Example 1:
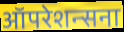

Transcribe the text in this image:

ऑपरेशन्सना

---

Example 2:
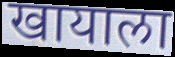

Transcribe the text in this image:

खायाला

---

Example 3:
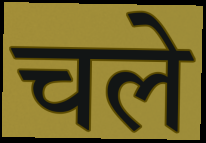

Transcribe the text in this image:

चले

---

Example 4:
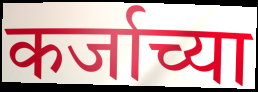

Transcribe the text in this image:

कर्जाच्या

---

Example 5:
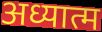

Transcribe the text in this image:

अध्यात्म